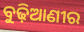
ବୁଢ଼ିଆଣୀର